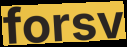
forsv